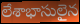
లేశాభాసులైన